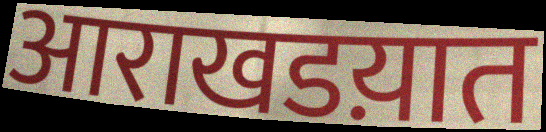
आराखडय़ात